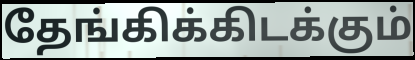
தேங்கிக்கிடக்கும்